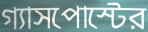
গ্যাসপোস্টের